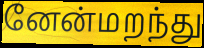
னேன்மறந்து